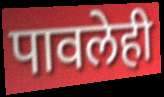
पावलेही